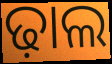
ଢ଼ାଲ